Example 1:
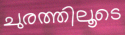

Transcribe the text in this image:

ചുരത്തിലൂടെ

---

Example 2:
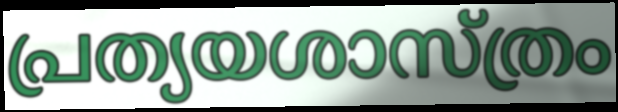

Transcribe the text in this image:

പ്രത്യയശാസ്ത്രം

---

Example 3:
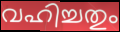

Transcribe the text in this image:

വഹിച്ചതും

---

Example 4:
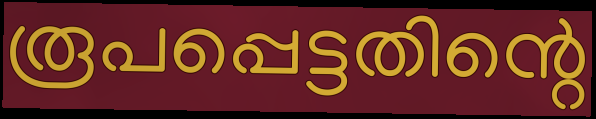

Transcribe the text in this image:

രൂപപ്പെട്ടതിന്റെ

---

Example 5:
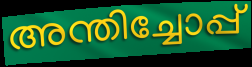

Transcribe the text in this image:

അന്തിച്ചോപ്പ്